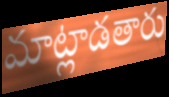
మాట్లాడతారు